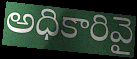
అధికారివై